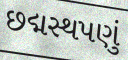
છદ્મસ્થપણું